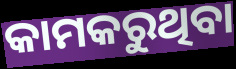
କାମକରୁଥିବା